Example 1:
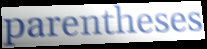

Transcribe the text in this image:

parentheses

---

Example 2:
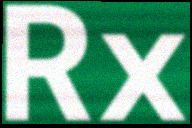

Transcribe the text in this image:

Rx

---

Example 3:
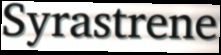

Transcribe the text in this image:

Syrastrene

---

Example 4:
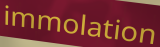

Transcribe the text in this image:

immolation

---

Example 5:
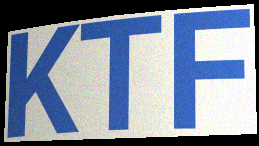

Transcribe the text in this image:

KTF